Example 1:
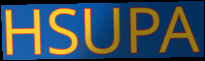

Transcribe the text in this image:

HSUPA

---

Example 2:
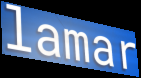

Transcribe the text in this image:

lamar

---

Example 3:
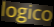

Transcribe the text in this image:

logico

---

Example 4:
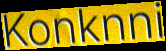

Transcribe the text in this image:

Konknni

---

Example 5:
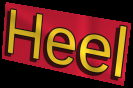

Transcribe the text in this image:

Heel